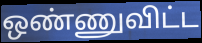
ஒண்ணுவிட்ட